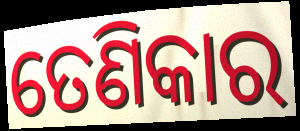
ତେଣିକାର